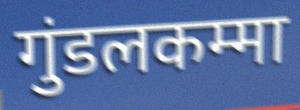
गुंडलकम्मा